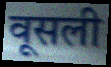
वूसली